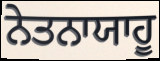
ਨੇਤਨਾਯਾਹੂ